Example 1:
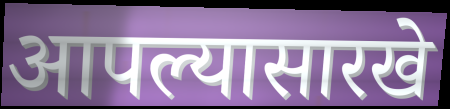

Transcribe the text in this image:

आपल्यासारखे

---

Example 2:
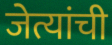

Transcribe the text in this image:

जेत्यांची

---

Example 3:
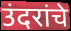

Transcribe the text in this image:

उंदरांचे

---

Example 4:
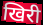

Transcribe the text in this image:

खिरी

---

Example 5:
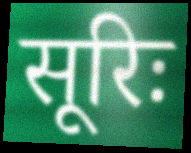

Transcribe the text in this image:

सूरिः